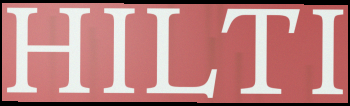
HILTI